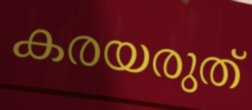
കരയരുത്